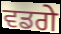
ਵਡਗੇ